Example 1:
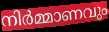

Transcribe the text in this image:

നിർമ്മാണവും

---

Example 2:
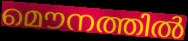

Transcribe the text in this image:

മൌനത്തിൽ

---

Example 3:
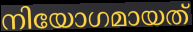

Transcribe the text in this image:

നിയോഗമായത്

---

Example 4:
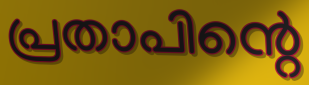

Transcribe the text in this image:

പ്രതാപിന്റെ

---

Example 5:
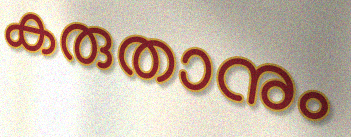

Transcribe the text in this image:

കരുതാനും